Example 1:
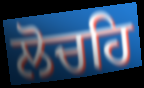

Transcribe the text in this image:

ਲੋਚਹਿ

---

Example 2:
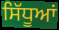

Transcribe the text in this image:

ਸਿੱਧੂਆਂ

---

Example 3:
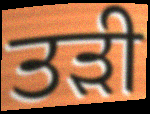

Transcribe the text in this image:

ਤੜੀ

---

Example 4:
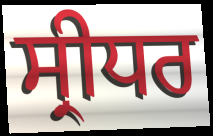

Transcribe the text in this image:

ਸ੍ਰੀਧਰ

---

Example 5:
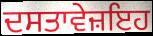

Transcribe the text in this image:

ਦਸਤਾਵੇਜ਼ਇਹ